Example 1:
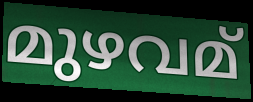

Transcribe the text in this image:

മുഴവമ്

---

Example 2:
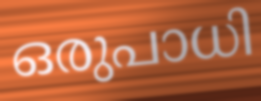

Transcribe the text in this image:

ഒരുപാധി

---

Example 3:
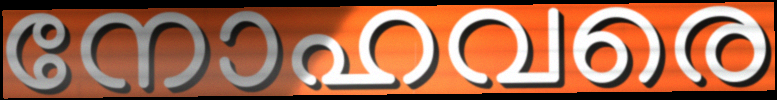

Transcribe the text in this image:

നോഹവരെ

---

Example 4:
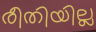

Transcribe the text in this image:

രീതിയില്ല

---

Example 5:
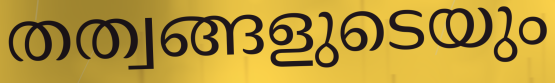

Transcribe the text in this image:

തത്വങ്ങളുടെയും